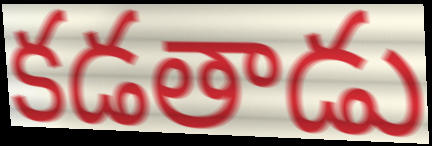
కడతాడు